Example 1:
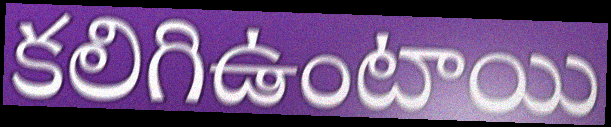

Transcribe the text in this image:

కలిగిఉంటాయి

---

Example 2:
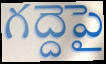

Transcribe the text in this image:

గద్దెపై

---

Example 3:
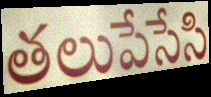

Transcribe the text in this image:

తలుపేసేసి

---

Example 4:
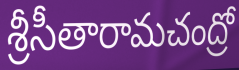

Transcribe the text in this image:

శ్రీసీతారామచంద్రో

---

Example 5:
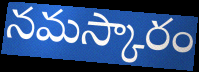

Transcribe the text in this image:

నమస్కారం